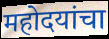
महोदयांचा